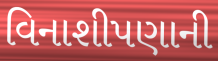
વિનાશીપણાની